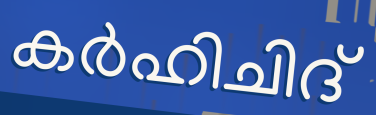
കർഹിചിദ്